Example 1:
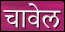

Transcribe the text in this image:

चावेल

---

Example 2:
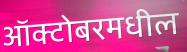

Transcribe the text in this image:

ऑक्टोबरमधील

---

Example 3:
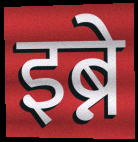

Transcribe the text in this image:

इब्ने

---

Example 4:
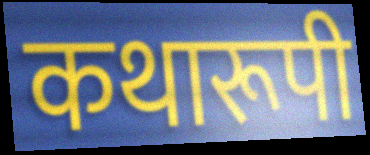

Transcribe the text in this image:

कथारूपी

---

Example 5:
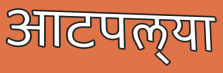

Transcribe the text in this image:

आटपल्या